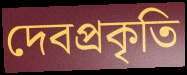
দেবপ্রকৃতি